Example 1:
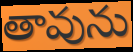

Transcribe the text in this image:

తావును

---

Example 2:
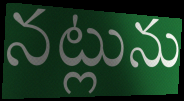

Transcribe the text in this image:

నట్లును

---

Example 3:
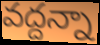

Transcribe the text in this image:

వద్దన్నా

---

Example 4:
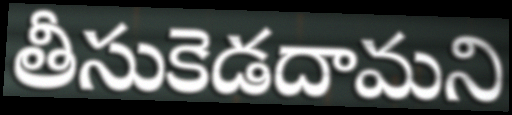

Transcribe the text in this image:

తీసుకెడదామని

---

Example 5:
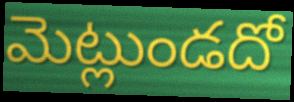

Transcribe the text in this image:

మెట్లుండదో